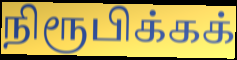
நிரூபிக்கக்